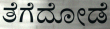
ತೆಗೆದೋಡೆ